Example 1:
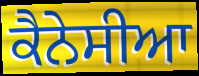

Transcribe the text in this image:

ਕੈਨੇਸੀਆ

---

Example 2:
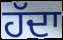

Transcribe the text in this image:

ਹੱਦਾ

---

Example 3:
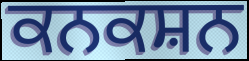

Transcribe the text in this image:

ਕਨਕਸ਼ਨ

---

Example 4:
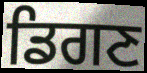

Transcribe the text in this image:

ਡਿਗਣ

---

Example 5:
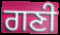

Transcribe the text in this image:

ਗਣੀ